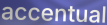
accentual